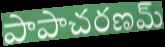
పాపాచరణమ్